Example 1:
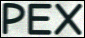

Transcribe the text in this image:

PEX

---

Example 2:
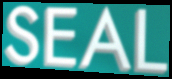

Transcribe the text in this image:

SEAL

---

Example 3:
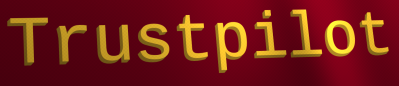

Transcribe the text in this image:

Trustpilot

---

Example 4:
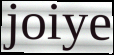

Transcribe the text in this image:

joiye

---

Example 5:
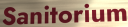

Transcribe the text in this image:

Sanitorium